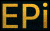
EPi